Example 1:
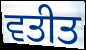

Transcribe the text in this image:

ਵਤੀਤ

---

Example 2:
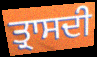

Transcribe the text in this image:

ਤ੍ਰਾਸਦੀ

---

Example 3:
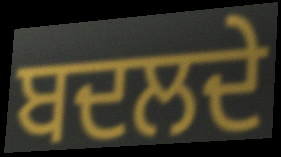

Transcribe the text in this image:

ਬਦਲਦੇ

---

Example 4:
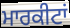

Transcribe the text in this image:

ਮਾਰਕੀਟਾਂ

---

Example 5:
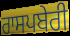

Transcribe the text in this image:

ਰਾਸਪਬੇਰੀ